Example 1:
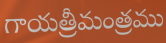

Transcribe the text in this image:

గాయత్రీమంత్రము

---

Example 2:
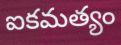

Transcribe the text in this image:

ఐకమత్యం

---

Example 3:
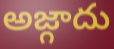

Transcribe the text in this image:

అజ్గాదు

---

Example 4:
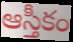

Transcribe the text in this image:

ఆస్తీకం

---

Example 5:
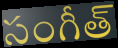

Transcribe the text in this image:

సంగీత్